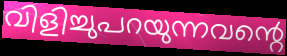
വിളിച്ചുപറയുന്നവന്റെ